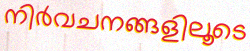
നിർവചനങ്ങളിലൂടെ